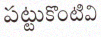
పట్టుకొంటివి